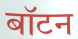
बॉटन